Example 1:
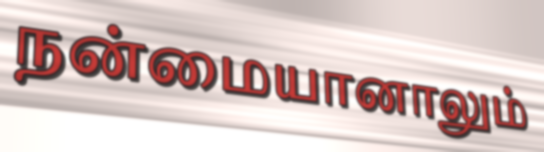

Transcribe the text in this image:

நன்மையானாலும்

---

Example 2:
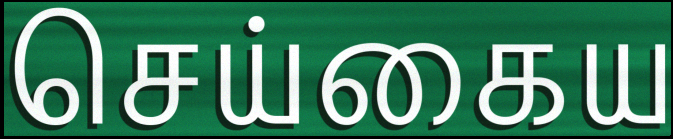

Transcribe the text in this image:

செய்கைய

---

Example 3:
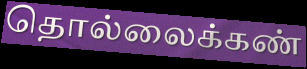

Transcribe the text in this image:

தொல்லைக்கண்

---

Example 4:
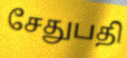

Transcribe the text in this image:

சேதுபதி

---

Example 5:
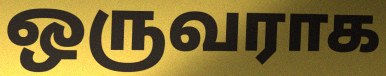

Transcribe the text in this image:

ஒருவராக